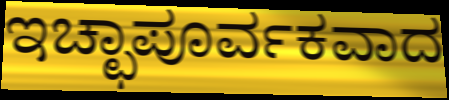
ಇಚ್ಛಾಪೂರ್ವಕವಾದ